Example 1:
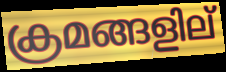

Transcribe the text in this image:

ക്രമങ്ങളില്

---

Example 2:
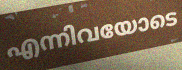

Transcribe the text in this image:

എന്നിവയോടെ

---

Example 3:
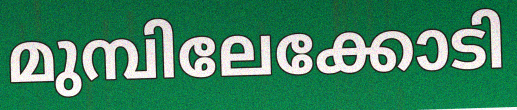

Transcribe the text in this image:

മുമ്പിലേക്കോടി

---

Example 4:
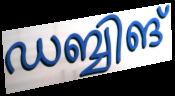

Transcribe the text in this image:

ഡബ്ബിങ്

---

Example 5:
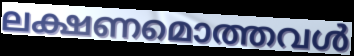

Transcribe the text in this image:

ലക്ഷണമൊത്തവൾ